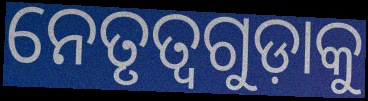
ନେତୃତ୍ୱଗୁଡ଼ାକୁ